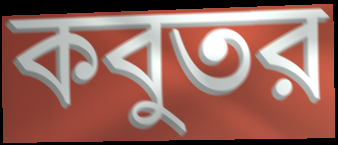
কবুতর